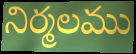
నిర్మలము